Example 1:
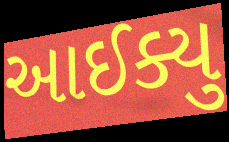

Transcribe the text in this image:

આઈક્યુ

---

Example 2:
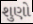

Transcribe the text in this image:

શુણો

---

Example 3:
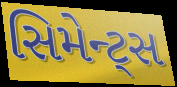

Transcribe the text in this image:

સિમેન્ટ્સ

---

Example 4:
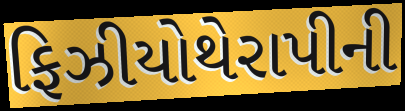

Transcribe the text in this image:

ફિઝીયોથેરાપીની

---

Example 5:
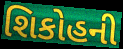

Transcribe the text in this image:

શિકોહની